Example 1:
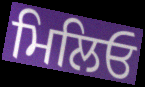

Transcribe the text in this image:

ਮਿਲਿਓ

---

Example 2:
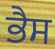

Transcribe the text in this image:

ਭੈਸ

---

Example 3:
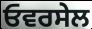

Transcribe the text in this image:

ਓਵਰਸੇਲ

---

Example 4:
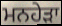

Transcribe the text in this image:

ਮਨਹੇੜਾ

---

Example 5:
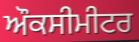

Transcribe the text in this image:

ਔਕਸੀਮੀਟਰ